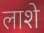
लाशे